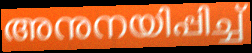
അനുനയിപ്പിച്ച്